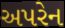
અપરેન